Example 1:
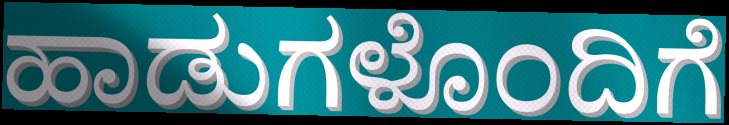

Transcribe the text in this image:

ಹಾಡುಗಳೊಂದಿಗೆ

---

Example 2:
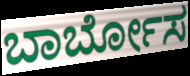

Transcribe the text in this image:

ಬಾರ್ಬೋಸ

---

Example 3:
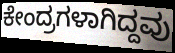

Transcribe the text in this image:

ಕೇಂದ್ರಗಳಾಗಿದ್ದವು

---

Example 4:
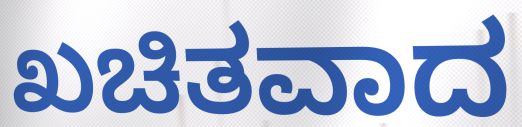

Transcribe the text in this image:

ಖಚಿತವಾದ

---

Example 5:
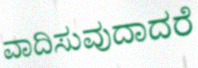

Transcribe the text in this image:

ವಾದಿಸುವುದಾದರೆ